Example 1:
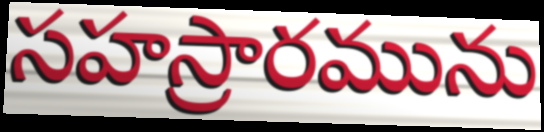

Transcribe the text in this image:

సహస్రారమును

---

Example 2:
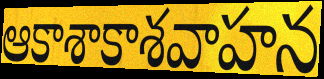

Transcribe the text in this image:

ఆకాశాకాశవాహన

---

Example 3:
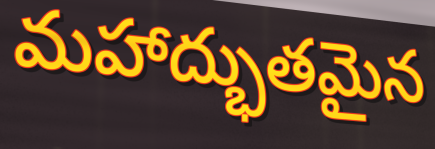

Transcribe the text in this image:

మహాద్భుతమైన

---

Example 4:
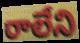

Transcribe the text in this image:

రాలేని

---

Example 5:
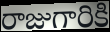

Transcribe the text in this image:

రాజుగారికి